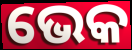
ଭେକ